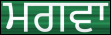
ਮਗਵਾ